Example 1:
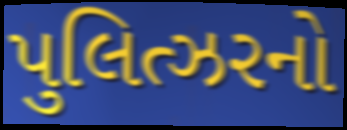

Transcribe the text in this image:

પુલિત્ઝરનો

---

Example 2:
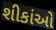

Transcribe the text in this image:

શીકાંઓ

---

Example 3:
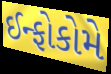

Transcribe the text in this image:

ઈન્ફોકોમે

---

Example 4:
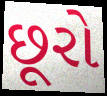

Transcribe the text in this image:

છૂરો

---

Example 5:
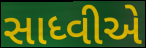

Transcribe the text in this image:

સાધ્વીએ